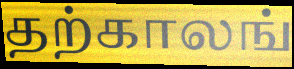
தற்காலங்